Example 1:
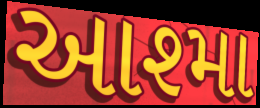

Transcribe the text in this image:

આશ્મા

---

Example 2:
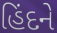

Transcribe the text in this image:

હિંદને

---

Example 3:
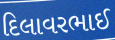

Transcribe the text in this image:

દિલાવરભાઈ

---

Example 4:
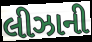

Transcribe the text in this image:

લીઝાની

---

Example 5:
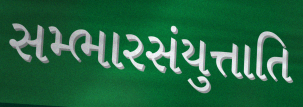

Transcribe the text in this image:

સમ્ભારસંયુત્તાતિ